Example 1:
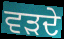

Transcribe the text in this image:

ਵੜਦੇ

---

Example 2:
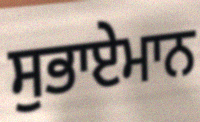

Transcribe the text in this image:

ਸੁਭਾਏਮਾਨ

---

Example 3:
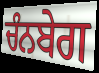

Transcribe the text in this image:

ਚੰਨਬੇਗ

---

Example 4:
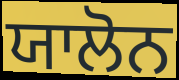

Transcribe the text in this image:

ਯਾਲੋਨ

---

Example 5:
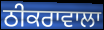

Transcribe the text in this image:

ਠੀਕਰਾਵਾਲਾ